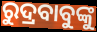
ରୁଦ୍ରବାବୁଙ୍କୁ